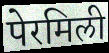
पेरमिली